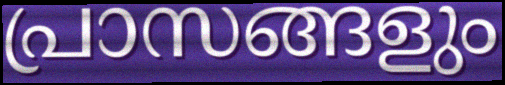
പ്രാസങ്ങളും